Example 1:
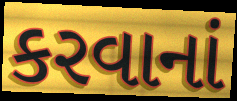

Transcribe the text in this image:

કરવાનાં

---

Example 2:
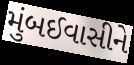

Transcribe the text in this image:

મુંબઈવાસીને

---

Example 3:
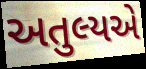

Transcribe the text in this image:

અતુલ્યએ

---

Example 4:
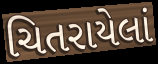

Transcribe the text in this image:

ચિતરાયેલાં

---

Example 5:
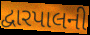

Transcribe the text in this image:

દ્વારપાલની